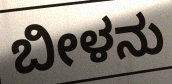
ಬೀಳನು